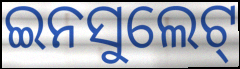
ଇନସୁଲେଟ୍